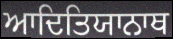
ਆਦਿਤਿਯਾਨਾਥ